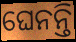
ଘେନନ୍ତି